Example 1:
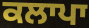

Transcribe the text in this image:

ਕਲਾਪਾ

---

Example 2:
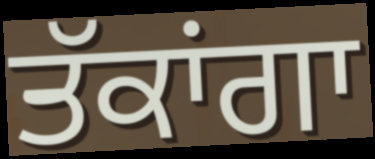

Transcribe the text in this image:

ਤੱਕਾਂਗਾ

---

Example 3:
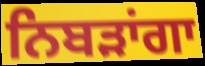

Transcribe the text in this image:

ਨਿਬੜਾਂਗਾ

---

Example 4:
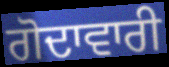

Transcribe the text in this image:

ਗੋਦਾਵਾਰੀ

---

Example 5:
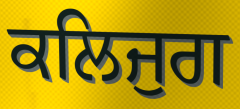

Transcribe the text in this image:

ਕਲਿਜੁਗ